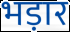
भड़ार